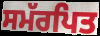
ਸਮੱਰਪਿਤ